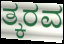
ತ್ಕರವ